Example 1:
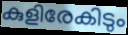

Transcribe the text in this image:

കുളിരേകിടും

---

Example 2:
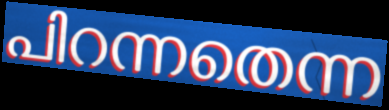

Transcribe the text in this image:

പിറന്നതെന്ന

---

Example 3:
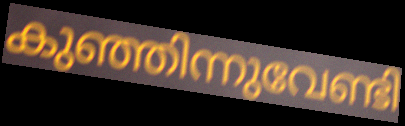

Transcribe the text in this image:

കുഞ്ഞിന്നുവേണ്ടി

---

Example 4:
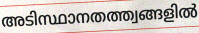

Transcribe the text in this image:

അടിസ്ഥാനതത്ത്വങ്ങളിൽ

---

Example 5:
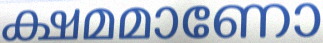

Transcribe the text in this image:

ക്ഷമമാണോ